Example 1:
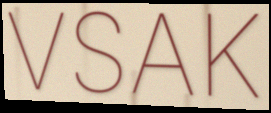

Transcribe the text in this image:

VSAK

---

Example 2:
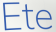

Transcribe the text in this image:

Ete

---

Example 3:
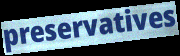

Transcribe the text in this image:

preservatives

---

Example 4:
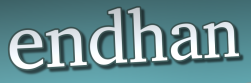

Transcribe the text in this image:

endhan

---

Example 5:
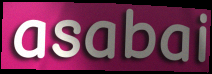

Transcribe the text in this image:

asabai